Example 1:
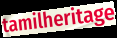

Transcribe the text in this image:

tamilheritage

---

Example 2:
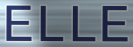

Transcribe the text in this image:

ELLE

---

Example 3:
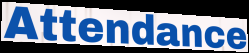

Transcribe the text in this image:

Attendance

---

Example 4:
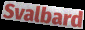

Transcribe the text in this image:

Svalbard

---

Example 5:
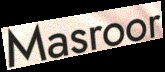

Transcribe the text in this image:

Masroor